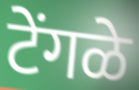
टेंगळे